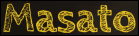
Masato